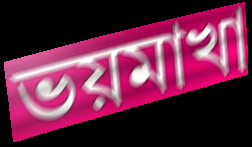
ভয়মাখা